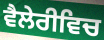
ਵੈਲੇਰੀਵਿਚ